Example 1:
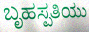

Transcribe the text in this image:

ಬೃಹಸ್ಪತಿಯು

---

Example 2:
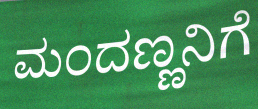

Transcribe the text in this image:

ಮಂದಣ್ಣನಿಗೆ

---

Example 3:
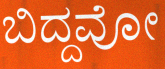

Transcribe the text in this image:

ಬಿದ್ದವೋ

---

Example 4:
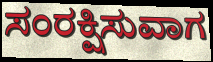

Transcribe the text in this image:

ಸಂರಕ್ಷಿಸುವಾಗ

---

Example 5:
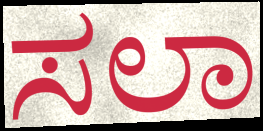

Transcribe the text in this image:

ಸಲಾ